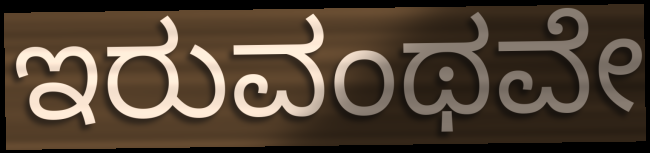
ಇರುವಂಥವೇ